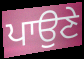
ਪਾਉਣੇ